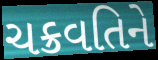
ચક્રવતિને